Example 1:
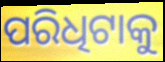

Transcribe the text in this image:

ପରିଧିଟାକୁ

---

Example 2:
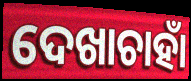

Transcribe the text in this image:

ଦେଖାଚାହାଁ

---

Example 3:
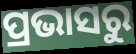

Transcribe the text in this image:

ପ୍ରଭାସରୁ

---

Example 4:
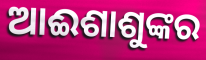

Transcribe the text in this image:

ଆଈଶାଶୁଙ୍କର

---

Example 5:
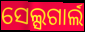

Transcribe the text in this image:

ସେଲ୍ସଗାର୍ଲ